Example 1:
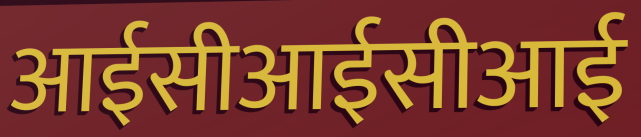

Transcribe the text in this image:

आईसीआईसीआई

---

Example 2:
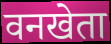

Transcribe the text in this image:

वनखेता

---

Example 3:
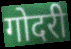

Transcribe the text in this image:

गोदरी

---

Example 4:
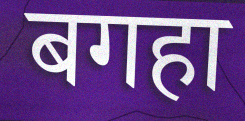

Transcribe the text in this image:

बगहा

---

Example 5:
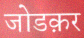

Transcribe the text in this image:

जोडक़र